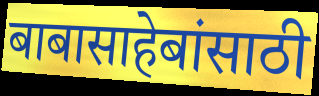
बाबासाहेबांसाठी